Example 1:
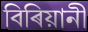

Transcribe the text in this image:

বিৰিয়ানী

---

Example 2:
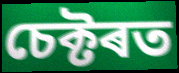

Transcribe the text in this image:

চেক্টৰত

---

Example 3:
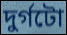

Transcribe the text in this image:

দুৰ্গটো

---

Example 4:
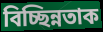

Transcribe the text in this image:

বিচ্ছিন্নতাক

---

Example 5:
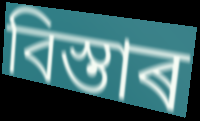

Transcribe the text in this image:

বিস্তাৰ